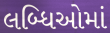
લબ્ધિઓમાં